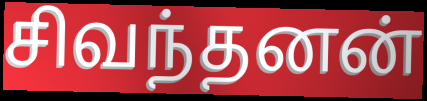
சிவந்தனன்